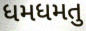
ધમધમતુ